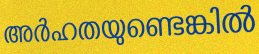
അർഹതയുണ്ടെങ്കിൽ